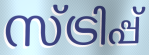
സ്ട്രിപ്പ്